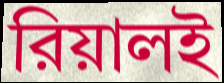
রিয়ালই